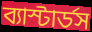
ব্যাস্টার্ডস